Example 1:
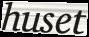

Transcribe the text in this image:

huset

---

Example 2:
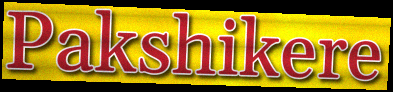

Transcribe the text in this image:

Pakshikere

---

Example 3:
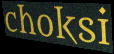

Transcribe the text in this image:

choksi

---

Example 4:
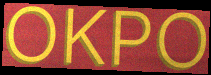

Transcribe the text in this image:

OKPO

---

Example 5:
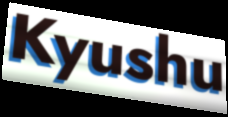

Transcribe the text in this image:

Kyushu